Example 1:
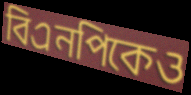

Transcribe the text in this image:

বিএনপিকেও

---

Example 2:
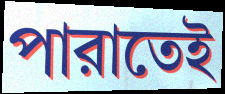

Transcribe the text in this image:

পারাতেই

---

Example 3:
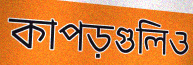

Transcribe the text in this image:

কাপড়গুলিও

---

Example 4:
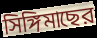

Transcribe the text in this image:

সিঙ্গিমাছের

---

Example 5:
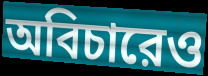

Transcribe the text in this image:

অবিচারেও